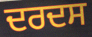
ਦਰਦਸ